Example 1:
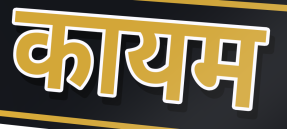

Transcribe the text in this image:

कायम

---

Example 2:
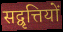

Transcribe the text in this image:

सद्वृत्तियों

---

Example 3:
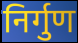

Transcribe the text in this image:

निर्गुण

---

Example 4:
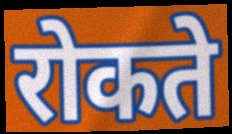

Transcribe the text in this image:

रोकते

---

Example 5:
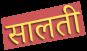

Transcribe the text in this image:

सालती